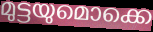
മുട്ടയുമൊക്കെ